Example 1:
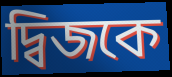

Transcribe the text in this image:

দ্বিজকে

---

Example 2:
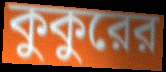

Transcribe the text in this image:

কুকুরের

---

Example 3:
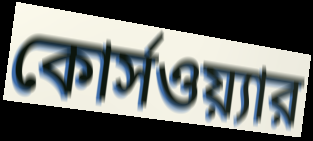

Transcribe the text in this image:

কোর্সওয়্যার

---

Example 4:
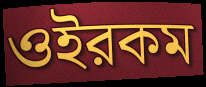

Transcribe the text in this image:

ওইরকম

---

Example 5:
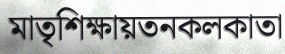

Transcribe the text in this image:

মাতৃশিক্ষায়তনকলকাতা